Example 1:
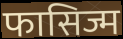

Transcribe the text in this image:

फासिज्म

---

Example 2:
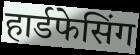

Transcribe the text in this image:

हार्डफेसिंग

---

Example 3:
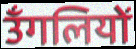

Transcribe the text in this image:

उँगलियों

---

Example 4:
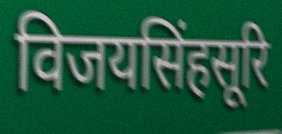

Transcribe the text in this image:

विजयसिंहसूरि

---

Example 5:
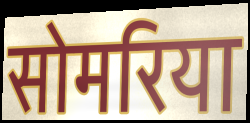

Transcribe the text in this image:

सोमरिया